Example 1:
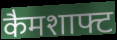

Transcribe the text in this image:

कैमशाफ्ट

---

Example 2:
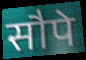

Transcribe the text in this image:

सौपे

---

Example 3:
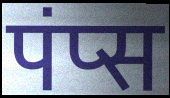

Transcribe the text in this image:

पंप्स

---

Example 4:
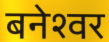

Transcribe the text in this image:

बनेश्वर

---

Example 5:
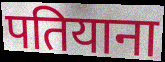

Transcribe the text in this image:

पतियाना